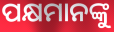
ପକ୍ଷମାନଙ୍କୁ